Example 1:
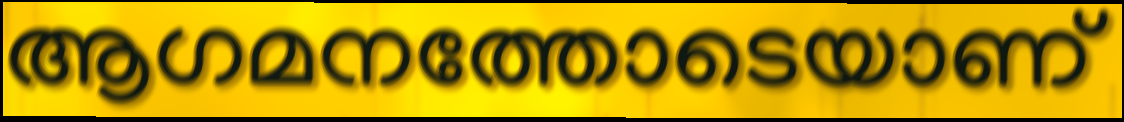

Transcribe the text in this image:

ആഗമനത്തോടെയാണ്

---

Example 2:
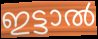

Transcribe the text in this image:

ഇട്ടാൽ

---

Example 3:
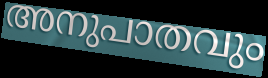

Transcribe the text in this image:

അനുപാതവും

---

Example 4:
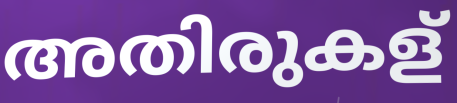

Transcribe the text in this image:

അതിരുകള്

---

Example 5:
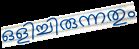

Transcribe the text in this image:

ഒളിച്ചിരുന്നതും